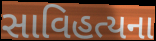
સાવિહત્યના